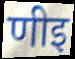
णीइ